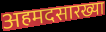
अहमदसारख्या